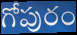
గోపురం